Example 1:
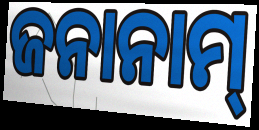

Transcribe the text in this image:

ଜନାନାମ୍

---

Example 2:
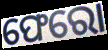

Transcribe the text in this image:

ଫେରୋ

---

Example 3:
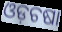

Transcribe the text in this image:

ଓଡ଼ଚଷା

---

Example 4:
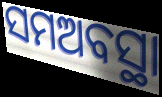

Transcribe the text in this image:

ସମଅବସ୍ଥା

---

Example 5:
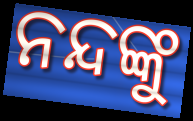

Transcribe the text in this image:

ନନ୍ଦଙ୍କୁ